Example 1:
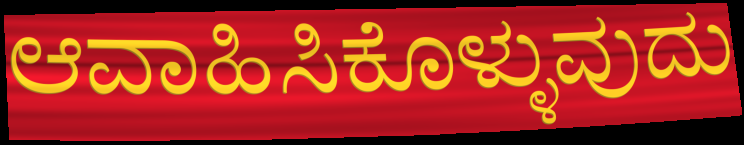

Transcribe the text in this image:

ಆವಾಹಿಸಿಕೊಳ್ಳುವುದು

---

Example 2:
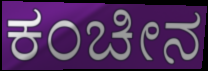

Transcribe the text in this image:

ಕಂಚೀನ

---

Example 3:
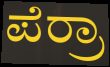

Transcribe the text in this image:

ಪೆರ್ರಾ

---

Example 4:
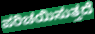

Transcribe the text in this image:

ಪರಿಚಯಿಸುತ್ತದೆ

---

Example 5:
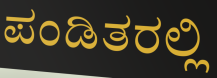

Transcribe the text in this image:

ಪಂಡಿತರಲ್ಲಿ